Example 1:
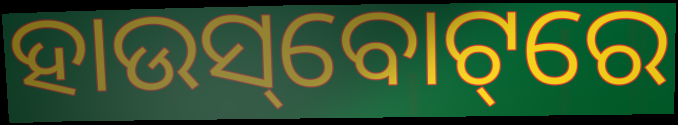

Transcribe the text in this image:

ହାଉସ୍‌ବୋଟ୍‌ରେ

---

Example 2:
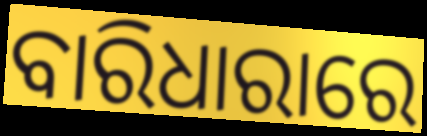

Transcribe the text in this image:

ବାରିଧାରାରେ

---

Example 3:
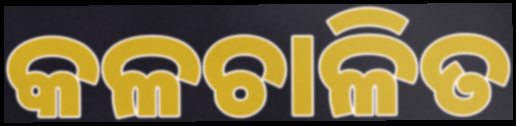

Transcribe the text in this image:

କଳଚାଳିତ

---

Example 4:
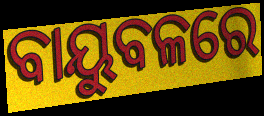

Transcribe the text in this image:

ବାୟୁବଳରେ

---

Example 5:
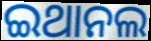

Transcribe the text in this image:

ଇଥାନଲ